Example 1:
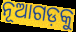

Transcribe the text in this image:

ନୂଆଗଡ଼କୁ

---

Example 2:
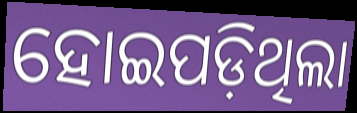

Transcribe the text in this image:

ହୋଇପଡ଼ିଥିଲା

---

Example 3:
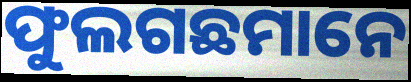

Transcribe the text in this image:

ଫୁଲଗଛମାନେ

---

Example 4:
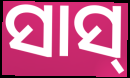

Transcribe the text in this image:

ସାସ୍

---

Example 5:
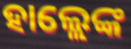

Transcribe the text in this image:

ହାଲ୍ଲେଙ୍କ